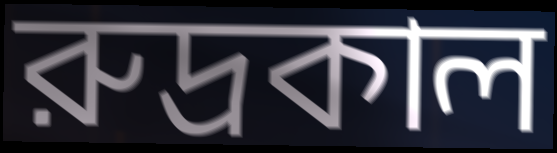
রুদ্রকাল